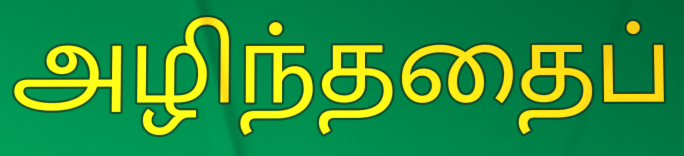
அழிந்ததைப்